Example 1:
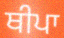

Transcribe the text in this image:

ਥੀਪਾ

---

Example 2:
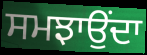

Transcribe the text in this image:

ਸਮਝਾਉਂਦਾ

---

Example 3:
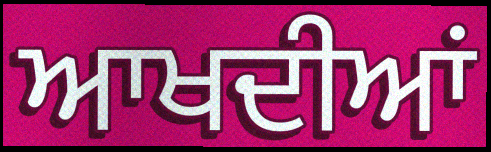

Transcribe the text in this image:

ਆਖਦੀਆਂ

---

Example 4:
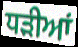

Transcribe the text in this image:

ਧੜੀਆਂ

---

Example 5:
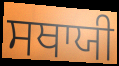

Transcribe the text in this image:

ਸਥਾਯੀ